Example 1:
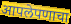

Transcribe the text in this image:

आपलेपणाचा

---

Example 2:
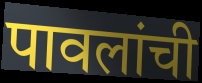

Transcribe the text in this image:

पावलांची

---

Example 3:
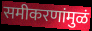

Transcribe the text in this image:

समीकरणांमुळं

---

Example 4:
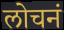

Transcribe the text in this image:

लोचनं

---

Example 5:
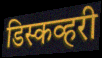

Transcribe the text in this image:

डिस्कव्हरी